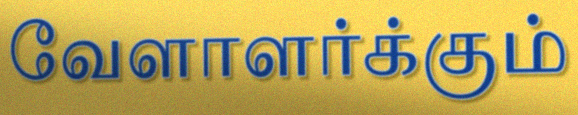
வேளாளர்க்கும்